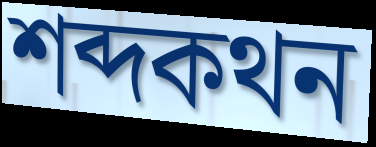
শব্দকথন